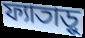
ফ্যাতাড়ু